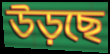
উড়ছে